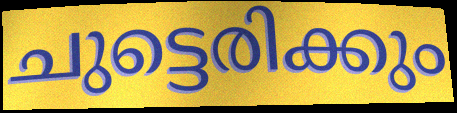
ചുട്ടെരിക്കും